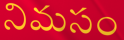
నిమసం